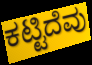
ಕಟ್ಟಿದೆವು